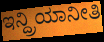
ಇನ್ದ್ರಿಯಾನೀತಿ